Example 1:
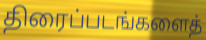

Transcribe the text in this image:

திரைப்படங்களைத்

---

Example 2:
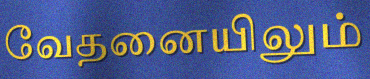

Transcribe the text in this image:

வேதனையிலும்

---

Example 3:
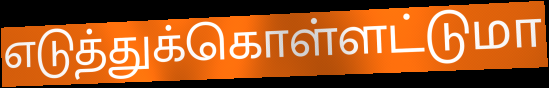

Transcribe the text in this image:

எடுத்துக்கொள்ளட்டுமா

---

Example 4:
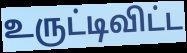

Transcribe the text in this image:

உருட்டிவிட்ட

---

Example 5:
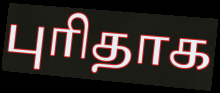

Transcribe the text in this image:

புரிதாக